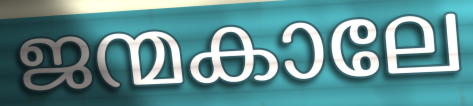
ജന്മകാലേ